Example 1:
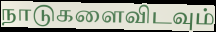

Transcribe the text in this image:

நாடுகளைவிடவும்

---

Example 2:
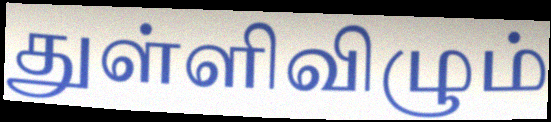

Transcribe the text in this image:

துள்ளிவிழும்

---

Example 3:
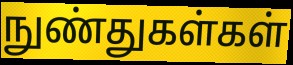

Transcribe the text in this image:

நுண்துகள்கள்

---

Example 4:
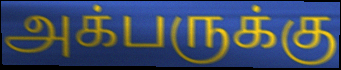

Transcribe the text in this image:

அக்பருக்கு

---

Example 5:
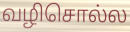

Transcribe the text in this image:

வழிசொல்ல